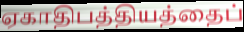
ஏகாதிபத்தியத்தைப்